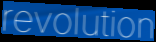
revolution